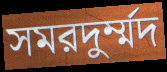
সমরদুর্ম্মদ